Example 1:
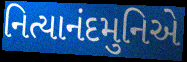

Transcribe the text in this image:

નિત્યાનંદમુનિએ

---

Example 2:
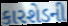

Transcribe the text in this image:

કારશેડની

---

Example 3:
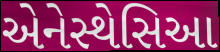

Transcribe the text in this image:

એનેસ્થેસિઆ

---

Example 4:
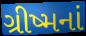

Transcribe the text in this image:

ગ્રીષ્મનાં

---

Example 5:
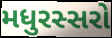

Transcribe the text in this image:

મધુરસ્સરો